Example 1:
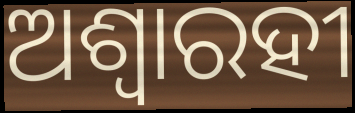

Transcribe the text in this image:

ଅଶ୍ୱାରହୀ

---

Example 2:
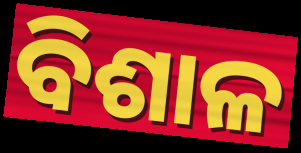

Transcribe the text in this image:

ବିଶାଳ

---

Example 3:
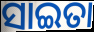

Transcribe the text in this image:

ସାଇତା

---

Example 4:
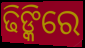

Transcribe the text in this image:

ଢିଙ୍କିରେ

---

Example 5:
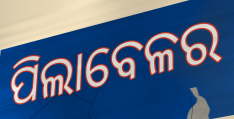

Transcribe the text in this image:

ପିଲାବେଳର